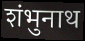
शंभुनाथ